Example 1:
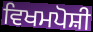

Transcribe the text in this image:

ਵਿਖਮਪੋਸ਼ੀ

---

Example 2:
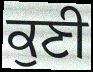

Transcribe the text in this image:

ਕੁਣੀ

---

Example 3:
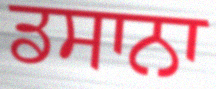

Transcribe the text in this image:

ਡਸਾਨਾ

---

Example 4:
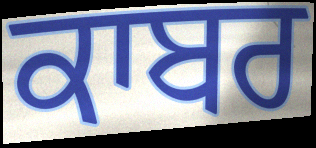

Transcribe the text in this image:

ਕਾਬਰ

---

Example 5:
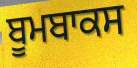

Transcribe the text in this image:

ਬੂਮਬਾਕਸ